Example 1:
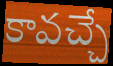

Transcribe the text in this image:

కావచ్చే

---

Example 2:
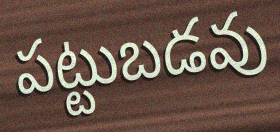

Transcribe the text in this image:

పట్టుబడవు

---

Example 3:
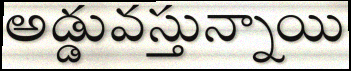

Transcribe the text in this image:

అడ్డువస్తున్నాయి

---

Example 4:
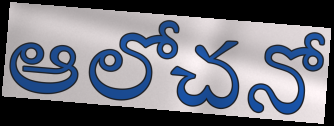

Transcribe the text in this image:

ఆలోచనో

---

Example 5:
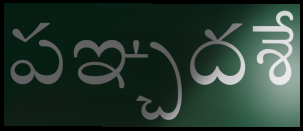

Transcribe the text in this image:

పఞ్చదశే